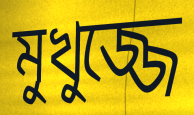
মুখুজ্জে